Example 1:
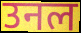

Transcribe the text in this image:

उनल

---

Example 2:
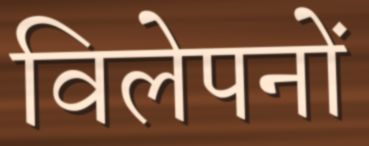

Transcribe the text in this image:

विलेपनों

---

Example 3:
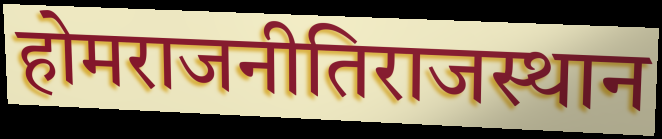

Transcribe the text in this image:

होमराजनीतिराजस्थान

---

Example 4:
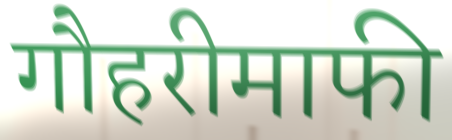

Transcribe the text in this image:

गौहरीमाफी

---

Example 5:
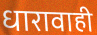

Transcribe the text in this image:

धारावाही